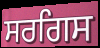
ਸਰਗਿਸ